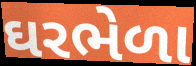
ઘરભેળા